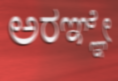
ಅರಞ್ಞೇ